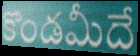
కొండమీదే